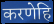
करणेहि